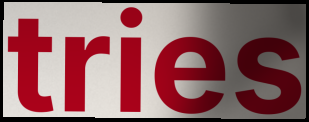
tries